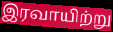
இரவாயிற்று